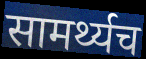
सामर्थ्यच